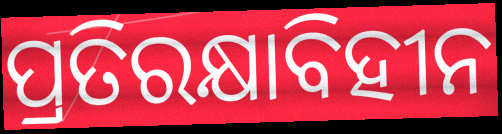
ପ୍ରତିରକ୍ଷାବିହୀନ